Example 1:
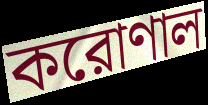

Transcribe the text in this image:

করোণাল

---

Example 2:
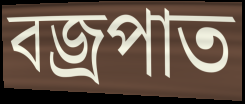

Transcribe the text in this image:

বজ্রপাত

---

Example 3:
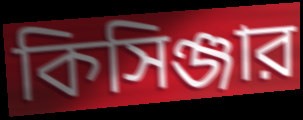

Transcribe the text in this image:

কিসিঞ্জার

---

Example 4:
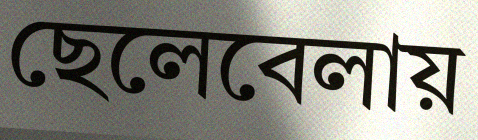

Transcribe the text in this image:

ছেলেবেলায়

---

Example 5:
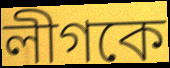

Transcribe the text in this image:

লীগকে